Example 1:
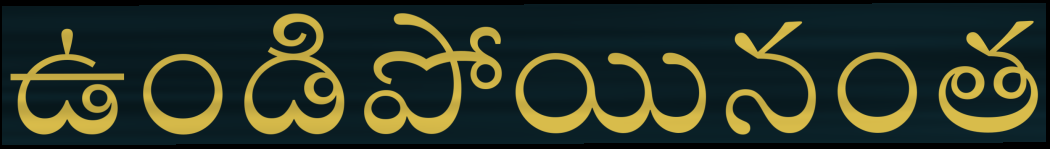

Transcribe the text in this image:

ఉండిపోయినంత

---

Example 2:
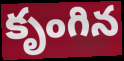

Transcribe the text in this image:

కృంగిన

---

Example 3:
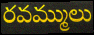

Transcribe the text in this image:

రవమ్ములు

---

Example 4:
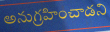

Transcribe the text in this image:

అనుగ్రహించాడని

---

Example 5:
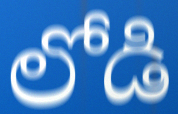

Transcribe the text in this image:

లోడి